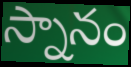
స్నానం